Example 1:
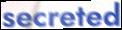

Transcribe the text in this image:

secreted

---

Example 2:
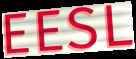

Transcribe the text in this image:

EESL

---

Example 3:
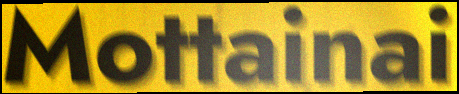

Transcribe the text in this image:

Mottainai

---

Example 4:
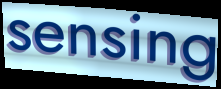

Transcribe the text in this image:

sensing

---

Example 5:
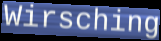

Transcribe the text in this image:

Wirsching